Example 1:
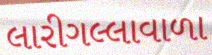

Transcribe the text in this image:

લારીગલ્લાવાળા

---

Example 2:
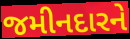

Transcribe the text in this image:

જમીનદારને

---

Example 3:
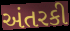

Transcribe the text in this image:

અંતરકી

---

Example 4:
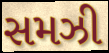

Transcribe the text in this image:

સમઝી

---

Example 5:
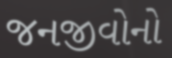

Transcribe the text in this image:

જનજીવોનો